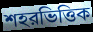
শহরভিত্তিক